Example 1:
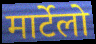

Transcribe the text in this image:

मार्टेलो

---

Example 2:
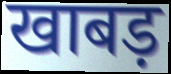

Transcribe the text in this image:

खाबड़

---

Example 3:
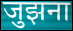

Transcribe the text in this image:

जुझना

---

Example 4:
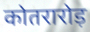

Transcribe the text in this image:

कोतरारोड़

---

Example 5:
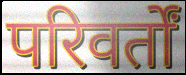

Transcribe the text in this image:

परिवर्तों